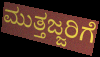
ಮುತ್ತಜ್ಜರಿಗೆ